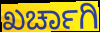
ಖರ್ಚಾಗಿ